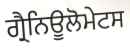
ਗ੍ਰੈਨਿਊਲੋਮੇਟਸ